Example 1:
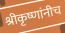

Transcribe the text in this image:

श्रीकृष्णांनीच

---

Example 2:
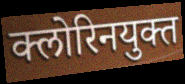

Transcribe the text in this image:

क्लोरिनयुक्त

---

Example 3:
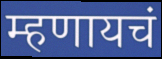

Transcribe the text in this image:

म्हणायचं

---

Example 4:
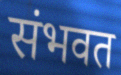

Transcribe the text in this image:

संभवत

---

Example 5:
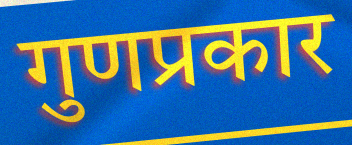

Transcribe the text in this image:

गुणप्रकार